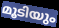
മൂടിയും